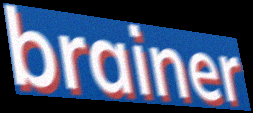
brainer